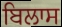
ਬਿਲਾਸ